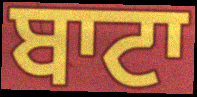
ਬਾਟਾ